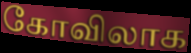
கோவிலாக